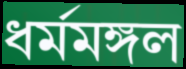
ধর্মমঙ্গল